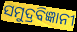
ସମୁଦ୍ରବିଜ୍ଞାନୀ